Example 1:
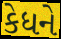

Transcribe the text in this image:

કેધને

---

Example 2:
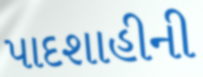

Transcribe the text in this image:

પાદશાહીની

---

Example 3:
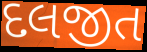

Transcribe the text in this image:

દલજીત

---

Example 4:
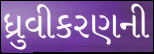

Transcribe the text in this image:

ધ્રુવીકરણની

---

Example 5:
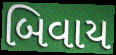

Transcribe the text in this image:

બિવાય